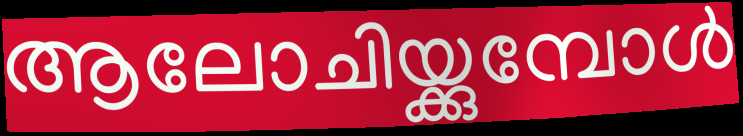
ആലോചിയ്ക്കുമ്പോൾ